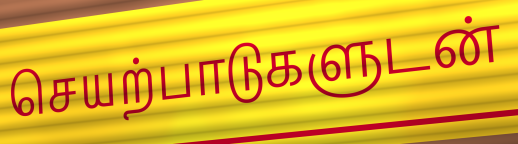
செயற்பாடுகளுடன்